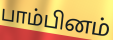
பாம்பினம்